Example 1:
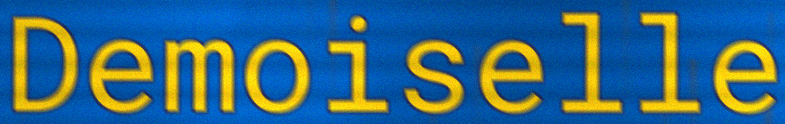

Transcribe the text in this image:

Demoiselle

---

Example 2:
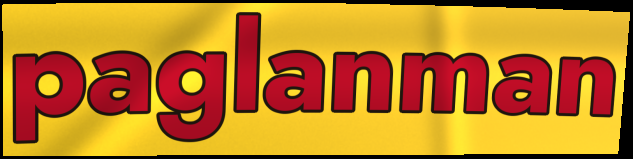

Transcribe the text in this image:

paglanman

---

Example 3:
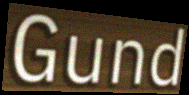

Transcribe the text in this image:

Gund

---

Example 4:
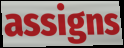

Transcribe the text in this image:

assigns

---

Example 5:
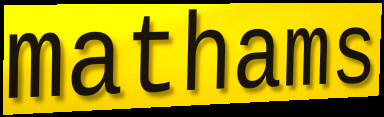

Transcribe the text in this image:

mathams